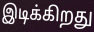
இடிக்கிறது